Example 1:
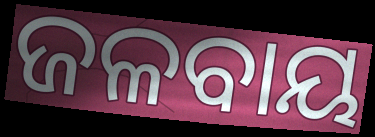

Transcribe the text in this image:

ଜଳବାୟ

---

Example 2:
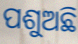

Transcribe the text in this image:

ପଶୁଅଛି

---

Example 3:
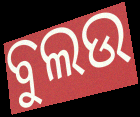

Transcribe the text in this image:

ବୁଲଉ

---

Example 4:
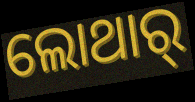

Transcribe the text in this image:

ଲୋଥାର୍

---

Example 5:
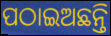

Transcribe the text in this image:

ପଠାଇଅଛନ୍ତି